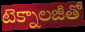
టెక్నాలజీతో